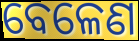
ବେଳେଣ